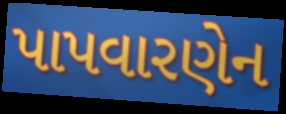
પાપવારણેન